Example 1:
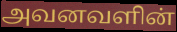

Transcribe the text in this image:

அவனவளின்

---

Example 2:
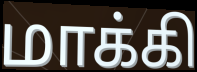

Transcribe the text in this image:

மாக்கி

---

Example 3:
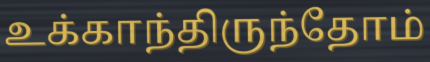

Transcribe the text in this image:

உக்காந்திருந்தோம்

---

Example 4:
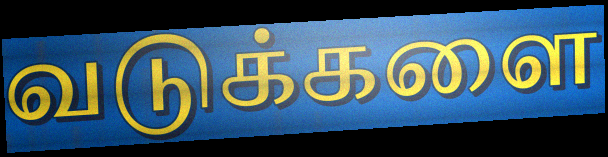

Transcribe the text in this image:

வடுக்களை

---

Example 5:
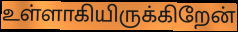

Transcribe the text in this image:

உள்ளாகியிருக்கிறேன்